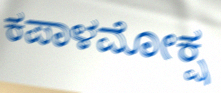
ಕಪಾಳಮೋಕ್ಷ